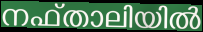
നഫ്താലിയിൽ